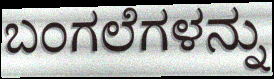
ಬಂಗಲೆಗಳನ್ನು